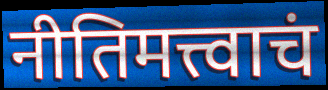
नीतिमत्त्वाचं